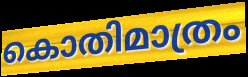
കൊതിമാത്രം